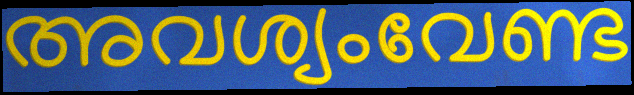
അവശ്യംവേണ്ട